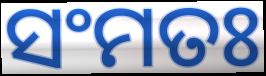
ସଂମତଃ